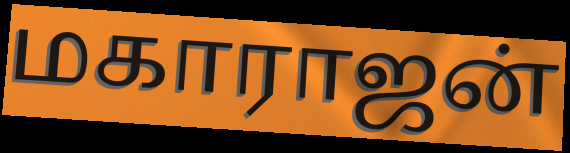
மகாராஜன்